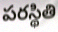
పరస్థితి